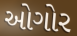
ઓગોર